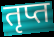
तृप्त